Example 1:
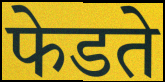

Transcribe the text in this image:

फेडते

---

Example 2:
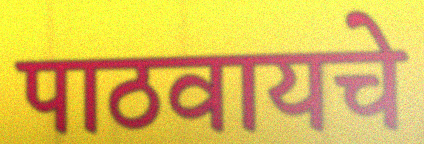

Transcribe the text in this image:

पाठवायचे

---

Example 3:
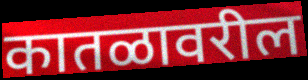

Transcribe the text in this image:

कातळावरील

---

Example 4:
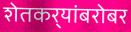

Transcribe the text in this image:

शेतकर्‍यांबरोबर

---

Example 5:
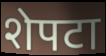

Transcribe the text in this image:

शेपटा